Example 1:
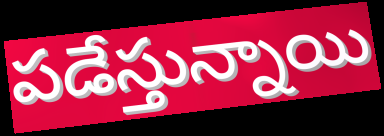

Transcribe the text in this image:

పడేస్తున్నాయి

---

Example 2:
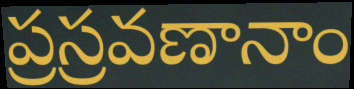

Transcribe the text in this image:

ప్రస్రవణానాం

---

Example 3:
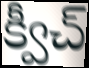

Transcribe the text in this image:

క్వీచ్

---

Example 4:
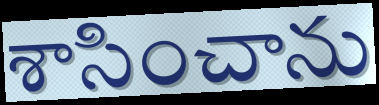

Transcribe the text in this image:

శాసించాను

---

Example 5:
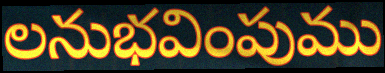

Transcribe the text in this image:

లనుభవింపుము